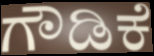
ಗೌಡಿಕೆ